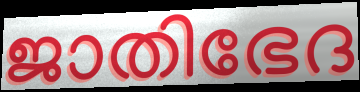
ജാതിഭേദ